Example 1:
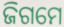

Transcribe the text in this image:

ଜିଗମେ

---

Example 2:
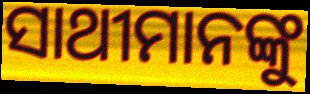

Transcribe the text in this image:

ସାଥୀମାନଙ୍କୁ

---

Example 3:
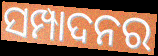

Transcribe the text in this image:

ସମ୍ପାଦନର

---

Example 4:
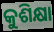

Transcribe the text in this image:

କୁଶିକ୍ଷା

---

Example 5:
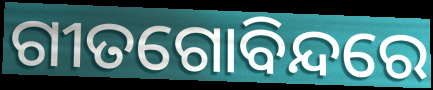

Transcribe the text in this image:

ଗୀତଗୋବିନ୍ଦରେ